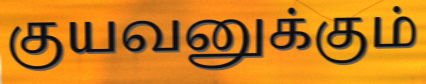
குயவனுக்கும்